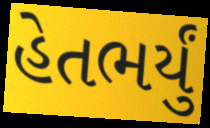
હેતભર્યું